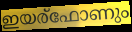
ഇയര്ഫോണും